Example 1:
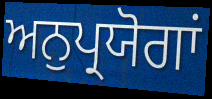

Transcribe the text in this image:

ਅਨੁਪ੍ਰਯੋਗਾਂ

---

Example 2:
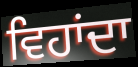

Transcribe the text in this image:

ਵਿਹਾਂਦਾ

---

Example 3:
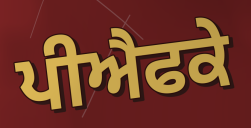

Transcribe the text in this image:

ਪੀਐਫਕੇ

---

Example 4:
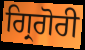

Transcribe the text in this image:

ਗ੍ਰਿਗੋਰੀ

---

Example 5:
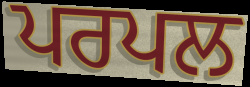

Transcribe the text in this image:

ਪਰਪਲ